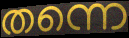
തന്നെ